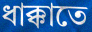
ধাক্কাতে